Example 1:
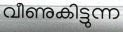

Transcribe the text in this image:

വീണുകിട്ടുന്ന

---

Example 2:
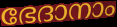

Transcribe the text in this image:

ഭേദാനാം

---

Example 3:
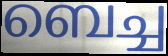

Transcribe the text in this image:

ബെച്ച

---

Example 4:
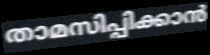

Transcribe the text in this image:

താമസിപ്പിക്കാൻ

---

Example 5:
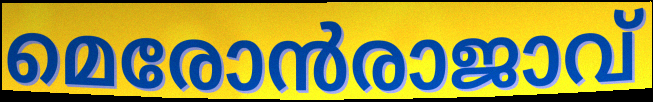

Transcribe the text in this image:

മെരോൻരാജാവ്